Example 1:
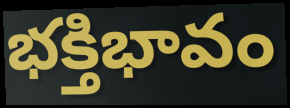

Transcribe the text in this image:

భక్తిభావం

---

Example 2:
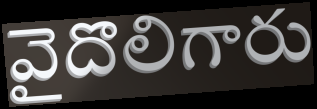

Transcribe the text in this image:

వైదొలిగారు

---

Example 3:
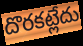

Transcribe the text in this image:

దొరకట్లేదు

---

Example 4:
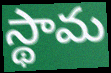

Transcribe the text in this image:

స్థామ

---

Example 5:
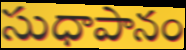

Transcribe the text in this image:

సుధాపానం